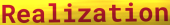
Realization